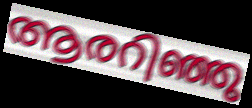
ആരറിഞ്ഞു